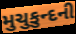
મુચુકુન્દની